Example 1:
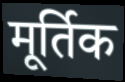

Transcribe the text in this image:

मूर्तिक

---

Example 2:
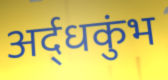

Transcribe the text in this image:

अर्द्धकुंभ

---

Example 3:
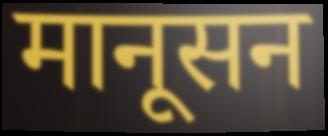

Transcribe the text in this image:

मानूसन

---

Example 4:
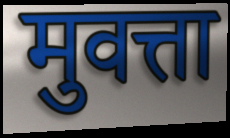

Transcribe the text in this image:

मुवत्ता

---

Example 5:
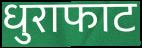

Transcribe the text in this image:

धुराफाट